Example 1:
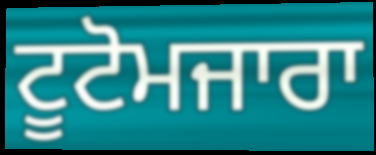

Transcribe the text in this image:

ਟੂਟੋਮਜਾਰਾ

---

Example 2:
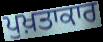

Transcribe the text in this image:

ਪੁਖ਼ਤਾਕਾਰ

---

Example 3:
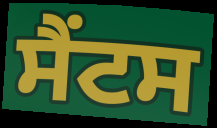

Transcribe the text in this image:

ਸੈਂਟਸ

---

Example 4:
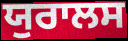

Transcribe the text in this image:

ਯੁਰਾਲਸ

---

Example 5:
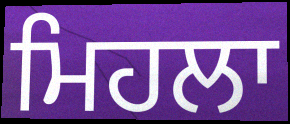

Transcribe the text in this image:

ਮਿਹਲਾ